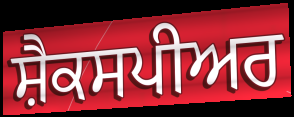
ਸ਼ੈਕਸਪੀਅਰ